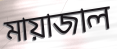
মায়াজাল